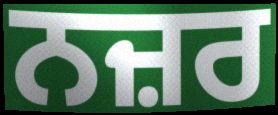
ਨਜ਼ਰ